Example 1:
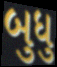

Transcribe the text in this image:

બુધુ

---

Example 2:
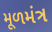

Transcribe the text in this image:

મૂળમંત્ર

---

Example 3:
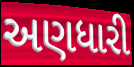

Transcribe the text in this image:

અણધારી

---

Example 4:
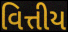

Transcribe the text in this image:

વિત્તીય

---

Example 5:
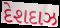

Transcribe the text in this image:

દેશદાઝ